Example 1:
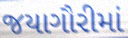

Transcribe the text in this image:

જયાગૌરીમાં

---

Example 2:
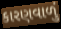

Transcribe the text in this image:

કારણવાળું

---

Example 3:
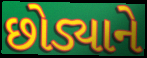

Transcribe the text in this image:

છોડ્યાને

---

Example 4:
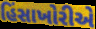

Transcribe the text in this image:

હિંસાખોરીએ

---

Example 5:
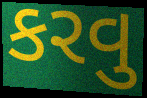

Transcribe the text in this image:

કરવુ